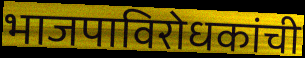
भाजपाविरोधकांची